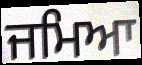
ਜਮਿਆ